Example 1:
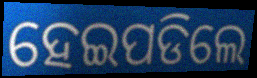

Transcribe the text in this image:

ହେଇପଡିଲେ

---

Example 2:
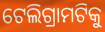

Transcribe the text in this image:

ଟେଲିଗ୍ରାମଟିକୁ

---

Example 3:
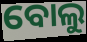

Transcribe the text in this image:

ବୋଲୁ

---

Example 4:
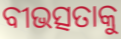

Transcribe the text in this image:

ବୀଭତ୍ସତାକୁ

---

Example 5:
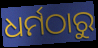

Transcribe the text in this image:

ଧର୍ମଠାରୁ